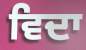
ਵਿਦਾ